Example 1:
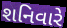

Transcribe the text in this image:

શનિવારે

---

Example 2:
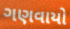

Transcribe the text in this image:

ગણવાયો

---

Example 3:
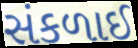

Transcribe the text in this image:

સંકળાઈ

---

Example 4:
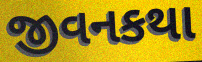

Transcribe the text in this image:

જીવનકથા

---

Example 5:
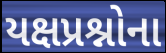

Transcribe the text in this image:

યક્ષપ્રશ્નોના